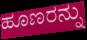
ಹೂಣರನ್ನು